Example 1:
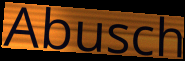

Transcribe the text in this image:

Abusch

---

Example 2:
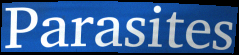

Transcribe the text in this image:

Parasites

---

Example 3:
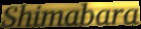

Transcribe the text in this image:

Shimabara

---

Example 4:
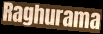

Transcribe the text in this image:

Raghurama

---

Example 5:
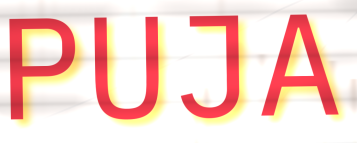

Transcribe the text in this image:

PUJA